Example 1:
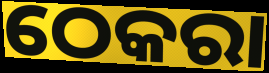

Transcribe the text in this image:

ଠେକରା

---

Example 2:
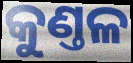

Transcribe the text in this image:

କୁଣ୍ତଳ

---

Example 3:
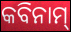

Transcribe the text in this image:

କବିନାମ୍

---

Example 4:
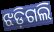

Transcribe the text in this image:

ଝଡ଼ିଗଲି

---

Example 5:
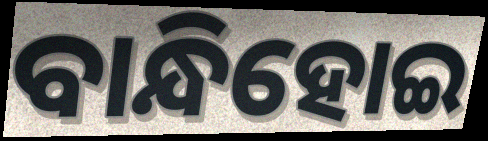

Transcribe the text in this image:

ବାନ୍ଧିହୋଇ